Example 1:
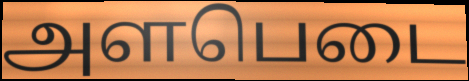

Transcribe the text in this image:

அளபெடை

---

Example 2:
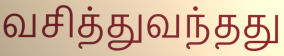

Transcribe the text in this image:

வசித்துவந்தது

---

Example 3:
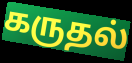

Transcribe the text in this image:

கருதல்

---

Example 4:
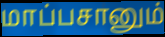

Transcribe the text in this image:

மாப்பசானும்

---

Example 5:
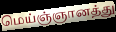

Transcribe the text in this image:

மெய்ஞ்ஞானத்து